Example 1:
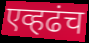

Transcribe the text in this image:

एव्हढंच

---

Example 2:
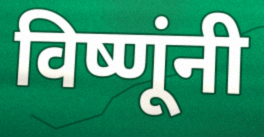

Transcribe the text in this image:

विष्णूंनी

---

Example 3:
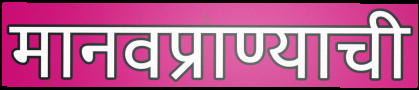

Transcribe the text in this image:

मानवप्राण्याची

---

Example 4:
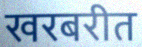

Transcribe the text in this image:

खरबरीत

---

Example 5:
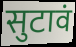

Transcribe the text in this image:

सुटावं